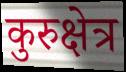
कुरुक्षेत्र